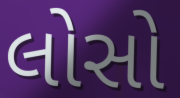
લોસો